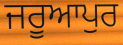
ਜਰੂਆਪੁਰ